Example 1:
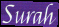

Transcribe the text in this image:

Surah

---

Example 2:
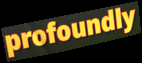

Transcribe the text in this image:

profoundly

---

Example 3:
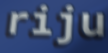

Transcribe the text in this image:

riju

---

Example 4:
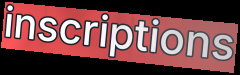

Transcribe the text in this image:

inscriptions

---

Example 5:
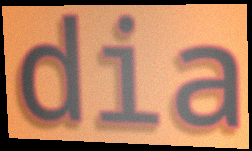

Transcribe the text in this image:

dia